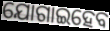
ଯୋଗାଇହେବ